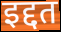
इद्दत